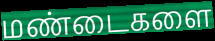
மண்டைகளை